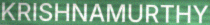
KRISHNAMURTHY